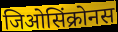
जिओसिंक्रोनस